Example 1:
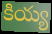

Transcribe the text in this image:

కియ్య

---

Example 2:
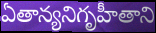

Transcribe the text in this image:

ఏతాన్యనిగృహీతాని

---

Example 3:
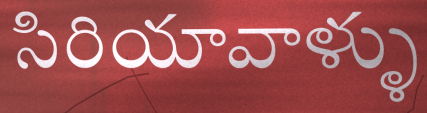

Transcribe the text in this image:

సిరియావాళ్ళు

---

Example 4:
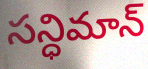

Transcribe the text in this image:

సన్ధిమాన్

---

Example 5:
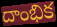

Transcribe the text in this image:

దాంభిక